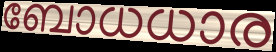
ബോധധാര